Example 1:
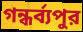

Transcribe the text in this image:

গন্ধর্ব্যপুর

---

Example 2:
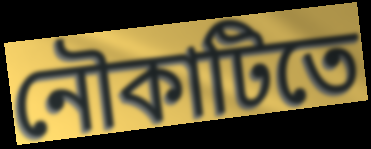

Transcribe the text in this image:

নৌকাটিতে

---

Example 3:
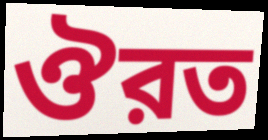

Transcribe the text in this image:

ঔরত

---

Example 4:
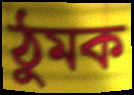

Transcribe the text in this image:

ঠুমক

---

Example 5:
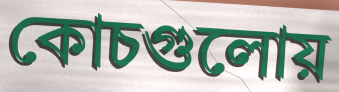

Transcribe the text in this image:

কোচগুলোয়